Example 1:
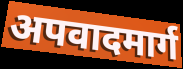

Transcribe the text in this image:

अपवादमार्ग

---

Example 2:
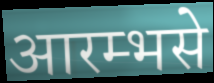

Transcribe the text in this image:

आरम्भसे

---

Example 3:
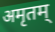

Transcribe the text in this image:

अमृतम्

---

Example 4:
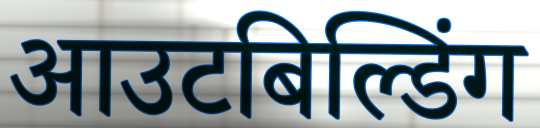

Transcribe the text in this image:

आउटबिल्डिंग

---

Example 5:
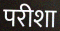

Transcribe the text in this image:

परीशा